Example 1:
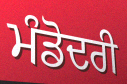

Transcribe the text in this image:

ਮੰਡੋਦਰੀ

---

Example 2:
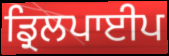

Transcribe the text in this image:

ਡ੍ਰਿਲਪਾਈਪ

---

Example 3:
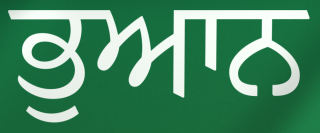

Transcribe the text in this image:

ਭੁਆਨ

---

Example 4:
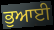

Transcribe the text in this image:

ਭੁਆਈ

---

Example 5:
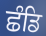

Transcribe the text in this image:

ਛੰਡਿ